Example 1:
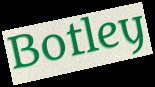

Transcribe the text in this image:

Botley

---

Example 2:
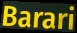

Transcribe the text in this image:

Barari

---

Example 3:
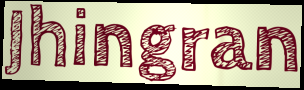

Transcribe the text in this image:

Jhingran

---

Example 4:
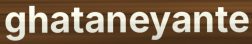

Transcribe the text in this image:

ghataneyante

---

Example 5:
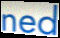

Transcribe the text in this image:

ned